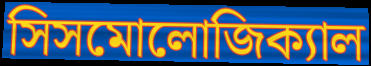
সিসমোলোজিক্যাল